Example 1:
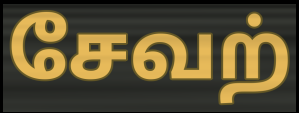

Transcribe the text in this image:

சேவற்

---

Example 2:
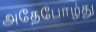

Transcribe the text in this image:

அதேபோழ்து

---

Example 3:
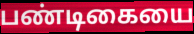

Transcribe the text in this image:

பண்டிகையை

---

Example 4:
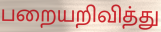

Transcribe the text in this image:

பறையறிவித்து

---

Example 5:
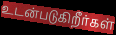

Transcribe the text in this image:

உடன்படுகிறீர்கள்